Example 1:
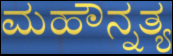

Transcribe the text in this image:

ಮಹೌನ್ನತ್ಯ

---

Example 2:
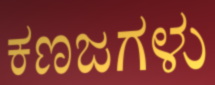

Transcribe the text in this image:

ಕಣಜಗಳು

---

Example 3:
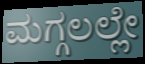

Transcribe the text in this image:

ಮಗ್ಗಲಲ್ಲೇ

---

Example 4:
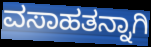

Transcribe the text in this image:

ವಸಾಹತನ್ನಾಗಿ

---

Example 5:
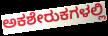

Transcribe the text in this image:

ಅಕಶೇರುಕಗಳಲ್ಲಿ